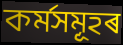
কৰ্মসমূহৰ